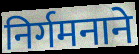
निर्गमनाने